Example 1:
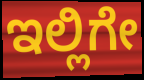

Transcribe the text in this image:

ಇಲ್ಲಿಗೇ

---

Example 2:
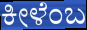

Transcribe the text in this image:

ಕೀಳೆಂಬ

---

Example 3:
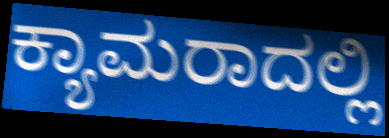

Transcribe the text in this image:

ಕ್ಯಾಮರಾದಲ್ಲಿ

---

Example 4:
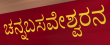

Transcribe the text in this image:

ಚನ್ನಬಸವೇಶ್ವರನ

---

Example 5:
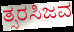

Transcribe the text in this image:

ತ್ಸರಸಿಜವ